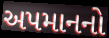
અપમાનનો